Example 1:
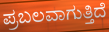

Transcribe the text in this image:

ಪ್ರಬಲವಾಗುತ್ತಿದೆ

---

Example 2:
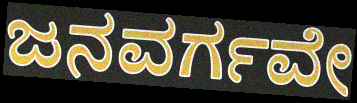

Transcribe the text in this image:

ಜನವರ್ಗವೇ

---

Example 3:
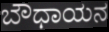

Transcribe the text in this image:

ಬೌಧಾಯನ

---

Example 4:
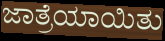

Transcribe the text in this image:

ಜಾತ್ರೆಯಾಯಿತು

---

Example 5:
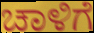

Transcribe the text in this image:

ಚಾಳಿಗೆ